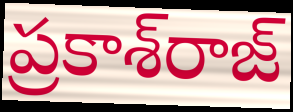
ప్రకాశ్‌రాజ్